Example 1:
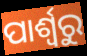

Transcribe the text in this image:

ପାର୍ଶ୍ଵରୁ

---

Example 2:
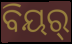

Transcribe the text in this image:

ବିୟର୍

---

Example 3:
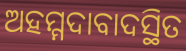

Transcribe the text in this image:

ଅହମ୍ମଦାବାଦସ୍ଥିତ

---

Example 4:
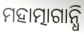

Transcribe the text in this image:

ମହାତ୍ମାଗାନ୍ଧି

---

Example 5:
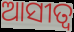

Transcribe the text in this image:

ଆସୀତ୍ବ